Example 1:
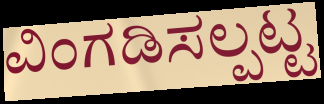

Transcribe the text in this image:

ವಿಂಗಡಿಸಲ್ಪಟ್ಟ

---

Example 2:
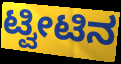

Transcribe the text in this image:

ಟ್ವೀಟಿನ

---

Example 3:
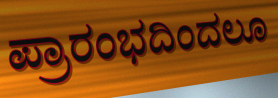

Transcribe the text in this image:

ಪ್ರಾರಂಭದಿಂದಲೂ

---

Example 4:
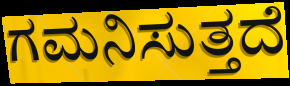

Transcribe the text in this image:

ಗಮನಿಸುತ್ತದೆ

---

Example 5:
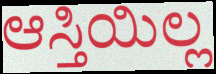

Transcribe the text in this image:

ಆಸ್ತಿಯಿಲ್ಲ